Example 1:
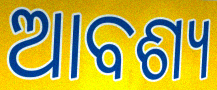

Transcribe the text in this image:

ଆବଶ୍ୟ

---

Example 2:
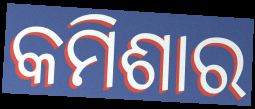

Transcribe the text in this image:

କମିଶାର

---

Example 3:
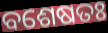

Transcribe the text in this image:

ବଶେଷତଃ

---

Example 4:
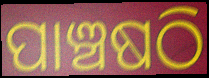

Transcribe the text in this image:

ପାଞ୍ଚଷଠି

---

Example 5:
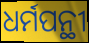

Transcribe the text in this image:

ଧର୍ମପନ୍ଥୀ